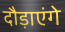
दौड़ाएंगे